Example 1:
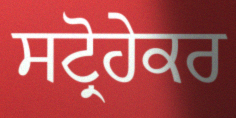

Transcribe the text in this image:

ਸਟ੍ਰੋਹੇਕਰ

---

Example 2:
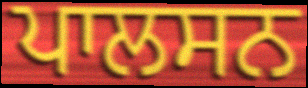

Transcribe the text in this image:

ਪਾਲਸਨ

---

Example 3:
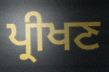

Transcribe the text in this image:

ਪ੍ਰੀਖਣ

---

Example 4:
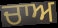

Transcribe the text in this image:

ਚਾਅ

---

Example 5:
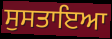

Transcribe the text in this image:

ਸੁਸਤਾਇਆ